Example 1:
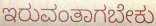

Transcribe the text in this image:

ಇರುವಂತಾಗಬೇಕು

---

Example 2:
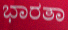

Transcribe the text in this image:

ಭಾರತಾ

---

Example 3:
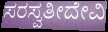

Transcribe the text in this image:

ಸರಸ್ವತೀದೇವಿ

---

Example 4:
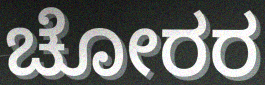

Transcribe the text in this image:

ಚೋರರ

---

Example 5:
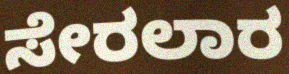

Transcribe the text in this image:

ಸೇರಲಾರ